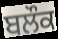
ਬਲੌਕ